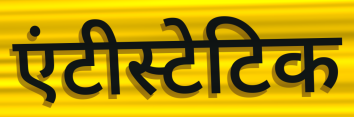
एंटीस्टेटिक